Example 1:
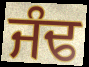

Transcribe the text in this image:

ਜੰਢ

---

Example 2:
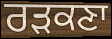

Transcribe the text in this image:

ਰੜਕਣਾ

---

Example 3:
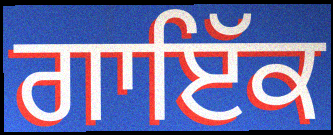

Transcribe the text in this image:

ਗਾਇੱਕ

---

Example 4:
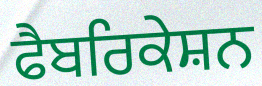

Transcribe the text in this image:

ਫੈਬਰਿਕੇਸ਼ਨ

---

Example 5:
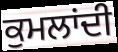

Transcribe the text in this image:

ਕੁਮਲਾਂਦੀ